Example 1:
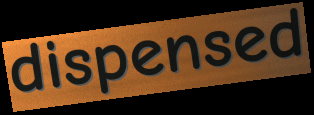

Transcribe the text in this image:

dispensed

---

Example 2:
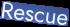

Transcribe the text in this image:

Rescue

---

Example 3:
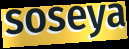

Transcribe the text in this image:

soseya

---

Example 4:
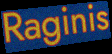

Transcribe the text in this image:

Raginis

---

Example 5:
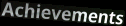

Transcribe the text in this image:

Achievements